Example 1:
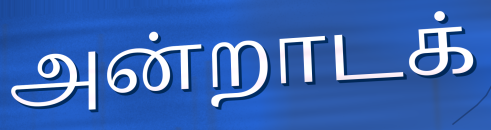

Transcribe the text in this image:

அன்றாடக்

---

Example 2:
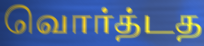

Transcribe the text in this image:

வொர்த்டத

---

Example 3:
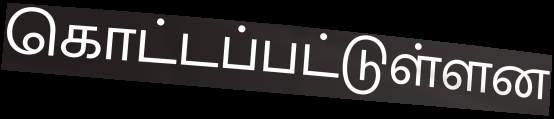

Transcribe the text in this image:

கொட்டப்பட்டுள்ளன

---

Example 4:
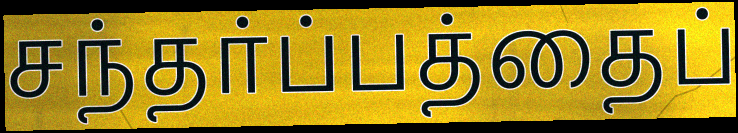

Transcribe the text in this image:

சந்தர்ப்பத்தைப்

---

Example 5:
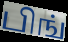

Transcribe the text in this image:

பிங்